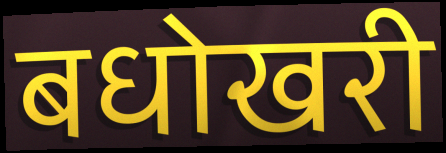
बधोखरी